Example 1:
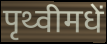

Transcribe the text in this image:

पृथ्वीमधें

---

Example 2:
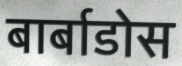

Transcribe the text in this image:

बार्बाडोस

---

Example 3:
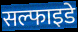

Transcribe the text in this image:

सल्फाइडे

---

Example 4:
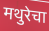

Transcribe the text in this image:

मथुरेचा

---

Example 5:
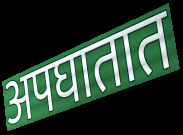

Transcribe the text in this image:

अपघातात